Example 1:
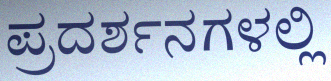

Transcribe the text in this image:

ಪ್ರದರ್ಶನಗಳಲ್ಲಿ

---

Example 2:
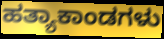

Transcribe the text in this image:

ಹತ್ಯಾಕಾಂಡಗಳು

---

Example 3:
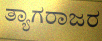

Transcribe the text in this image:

ತ್ಯಾಗರಾಜರ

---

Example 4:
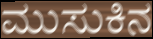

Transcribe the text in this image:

ಮುಸುಕಿನ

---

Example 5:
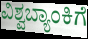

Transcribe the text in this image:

ವಿಶ್ವಬ್ಯಾಂಕಿಗೆ